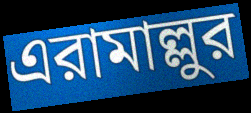
এরামাল্লুর